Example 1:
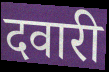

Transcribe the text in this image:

दवारी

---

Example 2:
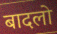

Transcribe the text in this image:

बादलो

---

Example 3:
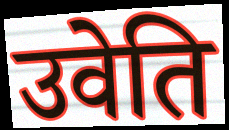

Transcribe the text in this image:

उवेति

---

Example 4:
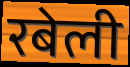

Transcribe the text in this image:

रबेली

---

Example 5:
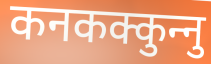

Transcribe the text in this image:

कनकक्कुन्नु